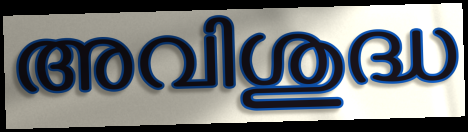
അവിശുദ്ധ